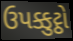
ઉપક્કુટ્ઠો